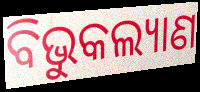
ବିଭୁକଲ୍ୟାଣ